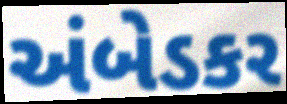
અંબેડકર